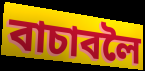
বাচাবলৈ